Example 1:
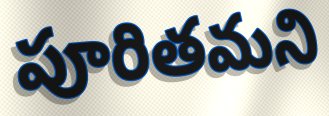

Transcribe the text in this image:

పూరితమని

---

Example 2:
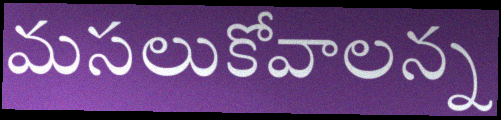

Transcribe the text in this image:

మసలుకోవాలన్న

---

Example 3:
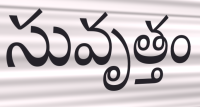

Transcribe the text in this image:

సువృత్తం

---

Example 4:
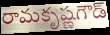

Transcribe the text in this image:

రామకృష్ణగౌడ్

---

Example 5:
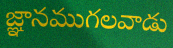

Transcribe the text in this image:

జ్ఞానముగలవాడు